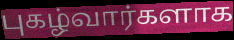
புகழ்வார்களாக